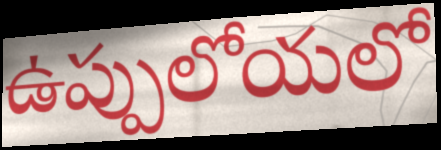
ఉప్పులోయలో